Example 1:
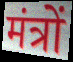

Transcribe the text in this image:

मंत्रों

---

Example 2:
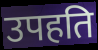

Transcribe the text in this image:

उपहति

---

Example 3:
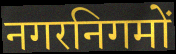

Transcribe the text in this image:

नगरनिगमों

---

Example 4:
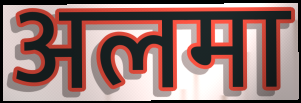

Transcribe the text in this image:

अलमा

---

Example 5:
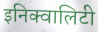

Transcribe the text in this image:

इनिक्वालिटी